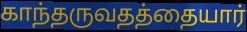
காந்தருவதத்தையார்